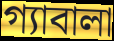
গ্যাবালা